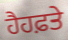
ਹੈਹਫ਼ਤੇ